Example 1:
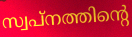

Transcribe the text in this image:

സ്വപ്നത്തിന്റെ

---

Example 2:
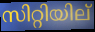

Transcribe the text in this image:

സിറ്റിയില്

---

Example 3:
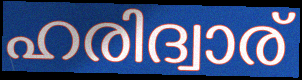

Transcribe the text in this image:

ഹരിദ്വാര്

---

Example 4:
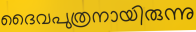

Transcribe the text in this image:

ദൈവപുത്രനായിരുന്നു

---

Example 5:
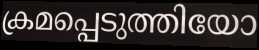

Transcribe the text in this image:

ക്രമപ്പെടുത്തിയോ